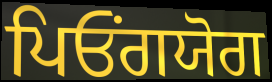
ਪਿਓਂਗਯੋਗ